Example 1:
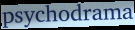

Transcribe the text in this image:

psychodrama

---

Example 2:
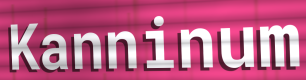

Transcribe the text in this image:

Kanninum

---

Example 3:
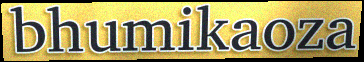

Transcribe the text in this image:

bhumikaoza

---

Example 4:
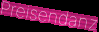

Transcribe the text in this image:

Preisendanz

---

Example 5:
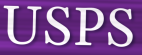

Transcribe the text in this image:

USPS